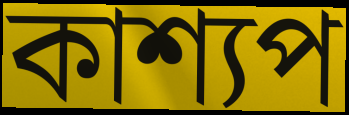
কাশ্যপ